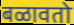
बळावतो